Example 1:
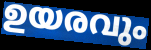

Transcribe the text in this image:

ഉയരവും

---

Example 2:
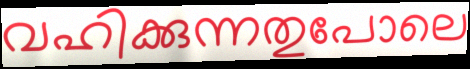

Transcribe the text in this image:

വഹിക്കുന്നതുപോലെ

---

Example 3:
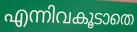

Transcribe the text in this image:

എന്നിവകൂടാതെ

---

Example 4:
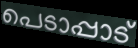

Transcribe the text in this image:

പെടാപ്പാട്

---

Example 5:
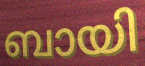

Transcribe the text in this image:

ബായി